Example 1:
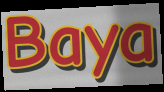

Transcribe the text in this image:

Baya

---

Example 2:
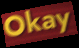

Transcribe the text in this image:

Okay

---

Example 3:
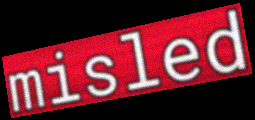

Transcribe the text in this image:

misled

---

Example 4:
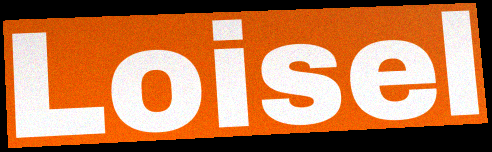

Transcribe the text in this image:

Loisel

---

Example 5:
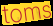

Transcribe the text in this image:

toms